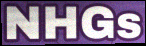
NHGs